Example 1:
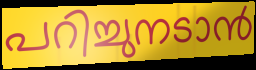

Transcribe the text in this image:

പറിച്ചുനടാൻ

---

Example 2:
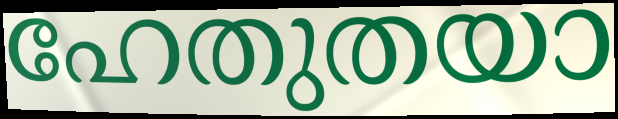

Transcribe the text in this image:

ഹേതുതയാ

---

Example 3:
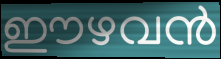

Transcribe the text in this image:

ഈഴവൻ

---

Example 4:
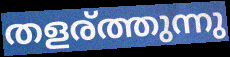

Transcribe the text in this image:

തളര്ത്തുന്നു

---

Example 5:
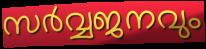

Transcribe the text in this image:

സർവ്വജനവും